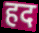
हद